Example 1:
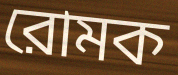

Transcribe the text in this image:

রোমক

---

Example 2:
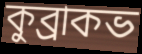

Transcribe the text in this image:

কুব্রাকভ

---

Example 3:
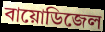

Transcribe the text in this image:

বায়োডিজেল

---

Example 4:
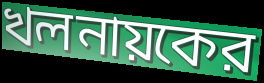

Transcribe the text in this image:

খলনায়কের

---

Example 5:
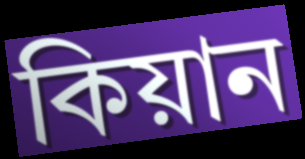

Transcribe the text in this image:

কিয়ান